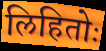
लिहितोः